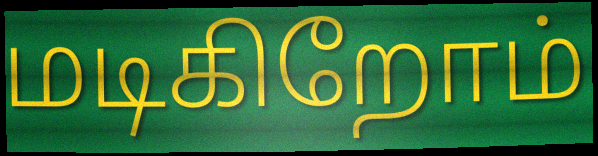
மடிகிறோம்